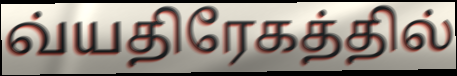
வ்யதிரேகத்தில்